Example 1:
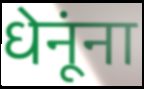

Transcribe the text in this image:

धेनूंना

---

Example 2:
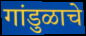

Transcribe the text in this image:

गांडुळाचे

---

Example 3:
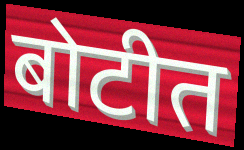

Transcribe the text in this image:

बोटीत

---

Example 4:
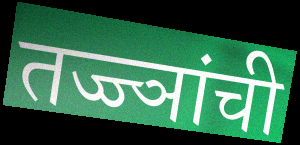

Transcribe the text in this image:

तज्ज्ञांची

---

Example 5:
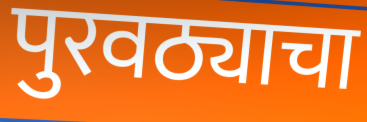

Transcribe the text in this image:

पुरवठ्याचा